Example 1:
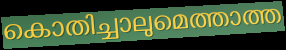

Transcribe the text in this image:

കൊതിച്ചാലുമെത്താത്ത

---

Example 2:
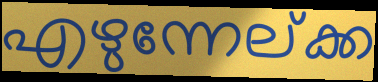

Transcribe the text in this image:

എഴുന്നേല്ക്ക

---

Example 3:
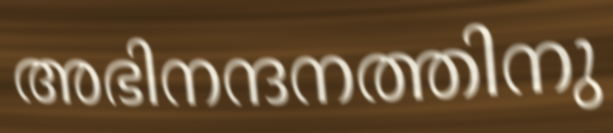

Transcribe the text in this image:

അഭിനന്ദനത്തിനു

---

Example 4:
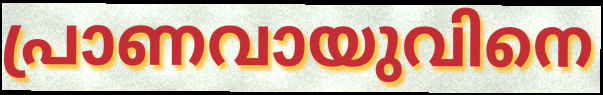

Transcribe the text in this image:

പ്രാണവായുവിനെ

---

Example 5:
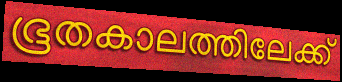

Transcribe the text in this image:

ഭൂതകാലത്തിലേക്ക്